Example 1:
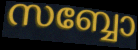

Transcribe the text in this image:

സബ്ബോ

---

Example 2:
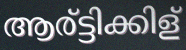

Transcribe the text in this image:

ആര്ട്ടിക്കിള്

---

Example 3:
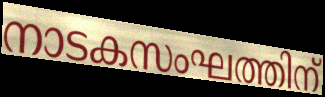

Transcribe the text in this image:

നാടകസംഘത്തിന്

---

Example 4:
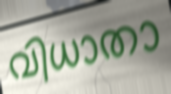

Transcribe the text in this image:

വിധാതാ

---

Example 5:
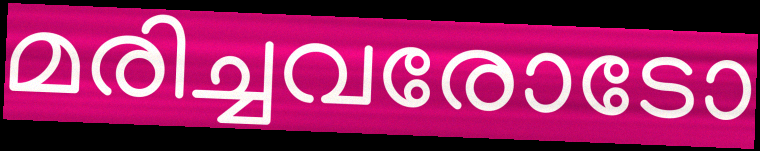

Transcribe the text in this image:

മരിച്ചവരോടോ